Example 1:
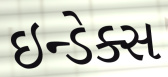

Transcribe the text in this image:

ઇન્ડેક્સ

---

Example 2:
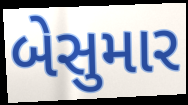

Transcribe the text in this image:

બેસુમાર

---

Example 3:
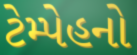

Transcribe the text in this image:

ટેમ્પેહનો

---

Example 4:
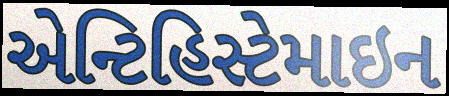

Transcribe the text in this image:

એન્ટિહિસ્ટેમાઇન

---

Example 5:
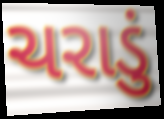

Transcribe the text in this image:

ચરાડું